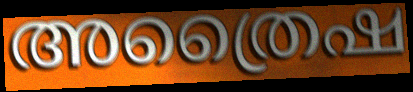
അത്രൈഷ